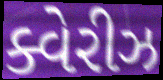
ક્વેરીઝ